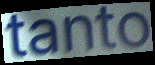
tanto